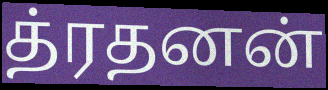
த்ரதனன்